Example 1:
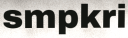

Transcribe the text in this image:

smpkri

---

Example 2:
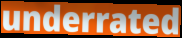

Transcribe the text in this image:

underrated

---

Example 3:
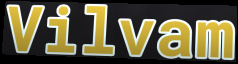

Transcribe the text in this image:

Vilvam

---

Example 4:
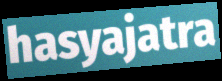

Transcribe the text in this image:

hasyajatra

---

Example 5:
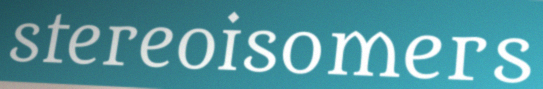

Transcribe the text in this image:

stereoisomers